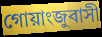
গোয়াংজুবাসী